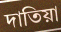
দাতিয়া